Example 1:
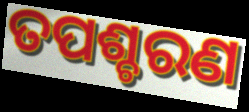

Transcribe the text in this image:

ତପଶ୍ଚରଣ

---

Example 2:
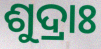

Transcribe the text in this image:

ଶୁଦ୍ରାଃ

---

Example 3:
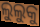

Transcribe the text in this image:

ଲୁଲୁକୁ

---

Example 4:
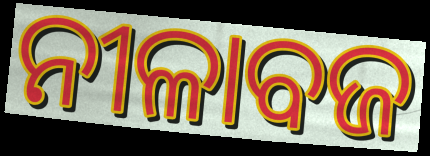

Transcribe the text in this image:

ନୀଳାବଜ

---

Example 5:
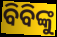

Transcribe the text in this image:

ବିବିଙ୍କୁ